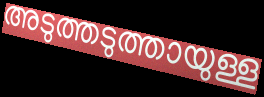
അടുത്തടുത്തായുള്ള